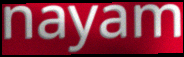
nayam